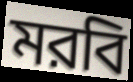
মরবি